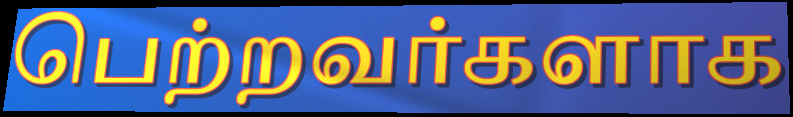
பெற்றவர்களாக